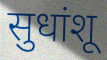
सुधांशू